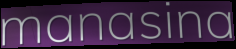
manasina